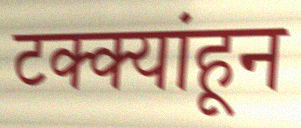
टक्क्यांहून